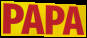
PAPA